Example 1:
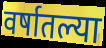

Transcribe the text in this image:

वर्षातल्या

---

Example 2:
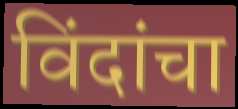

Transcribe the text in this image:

विंदांचा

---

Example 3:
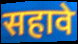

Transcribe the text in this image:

सहावे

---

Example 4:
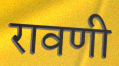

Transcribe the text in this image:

रावणी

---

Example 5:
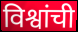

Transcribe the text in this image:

विश्वांची